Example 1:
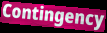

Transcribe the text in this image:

Contingency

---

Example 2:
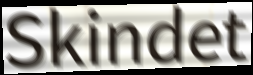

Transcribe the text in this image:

Skindet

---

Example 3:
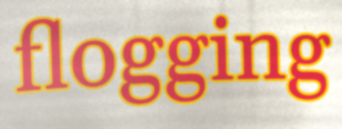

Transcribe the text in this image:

flogging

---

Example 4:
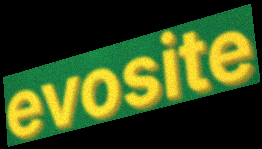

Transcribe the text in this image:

evosite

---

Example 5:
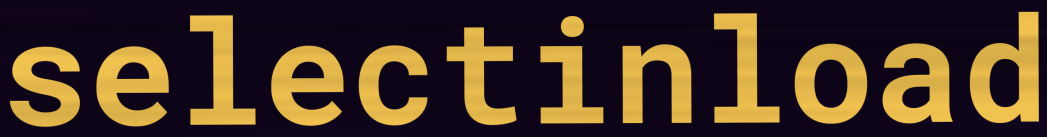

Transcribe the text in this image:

selectinload